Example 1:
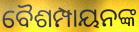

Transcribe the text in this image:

ବୈଶମ୍ପାୟନଙ୍କ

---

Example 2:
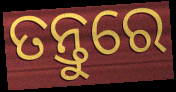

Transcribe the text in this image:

ତନ୍ତୁରେ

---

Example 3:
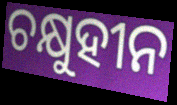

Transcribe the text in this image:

ଚକ୍ଷୁହୀନ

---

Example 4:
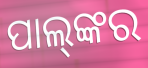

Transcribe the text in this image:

ପାଲ୍‍ଙ୍କର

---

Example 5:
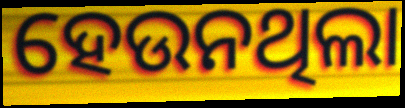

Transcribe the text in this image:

ହେଉନଥିଲା